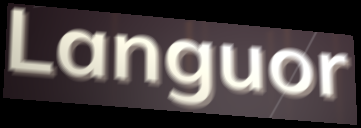
Languor